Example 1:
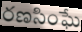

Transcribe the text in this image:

రణసింఘే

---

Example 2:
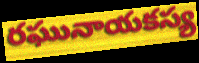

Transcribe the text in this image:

రఘునాయకస్య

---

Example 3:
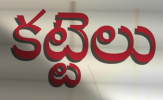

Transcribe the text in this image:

కట్టెలు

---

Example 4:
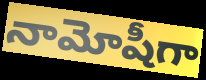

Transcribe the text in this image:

నామోషీగా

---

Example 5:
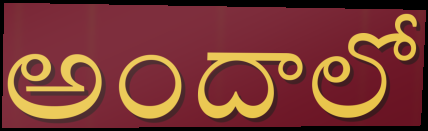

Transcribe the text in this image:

అందాలో